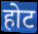
होट